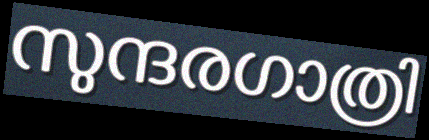
സുന്ദരഗാത്രി